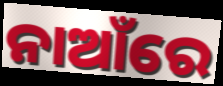
ନାଆଁରେ